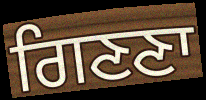
ਗਿਣਣਾ